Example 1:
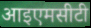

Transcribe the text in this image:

आइएमसीटी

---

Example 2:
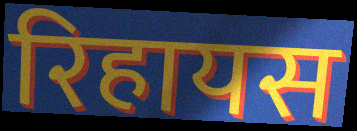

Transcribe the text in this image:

रिहायस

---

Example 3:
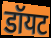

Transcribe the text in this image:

डॉयट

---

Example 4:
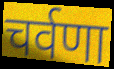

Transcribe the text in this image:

चर्वणा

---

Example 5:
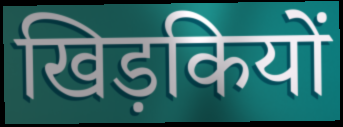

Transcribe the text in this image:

खिड़कियों